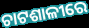
ଚାଟଶାଳୀରେ